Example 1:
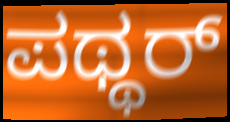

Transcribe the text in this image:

ಪಥ್ಥರ್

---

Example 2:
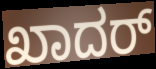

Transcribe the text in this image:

ಖಾದರ್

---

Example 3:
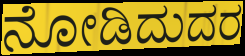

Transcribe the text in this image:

ನೋಡಿದುದರ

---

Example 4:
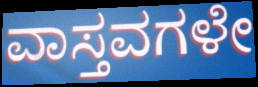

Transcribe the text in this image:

ವಾಸ್ತವಗಳೇ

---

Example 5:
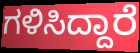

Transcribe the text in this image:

ಗಳಿಸಿದ್ದಾರೆ